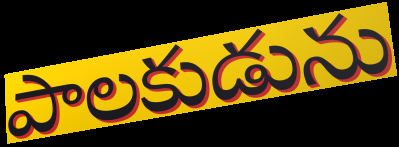
పాలకుడును